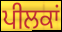
ਪੀਲਕਾਂ